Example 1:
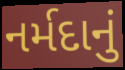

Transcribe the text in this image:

નર્મદાનું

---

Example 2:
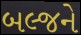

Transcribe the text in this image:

બલ્જને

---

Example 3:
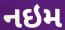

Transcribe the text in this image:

નઇમ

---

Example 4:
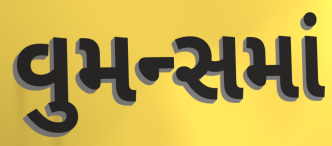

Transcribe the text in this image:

વુમન્સમાં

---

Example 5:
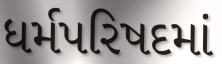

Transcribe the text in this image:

ધર્મપરિષદમાં